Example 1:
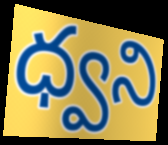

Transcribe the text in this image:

ధ్వని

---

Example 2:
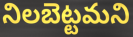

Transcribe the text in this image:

నిలబెట్టమని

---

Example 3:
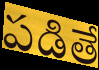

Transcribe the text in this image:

పడితే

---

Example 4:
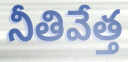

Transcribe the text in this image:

నీతివేత్త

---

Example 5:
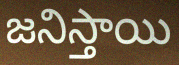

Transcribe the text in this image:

జనిస్తాయి